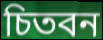
চিতবন